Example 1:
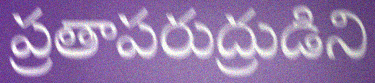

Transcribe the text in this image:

ప్రతాపరుద్రుడిని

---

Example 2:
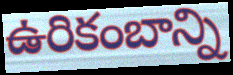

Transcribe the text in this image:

ఉరికంబాన్ని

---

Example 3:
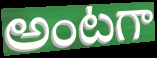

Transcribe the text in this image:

అంటగా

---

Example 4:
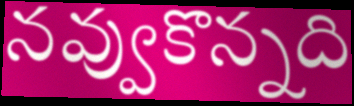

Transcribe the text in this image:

నవ్వుకొన్నది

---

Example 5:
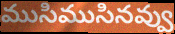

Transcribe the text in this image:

ముసిముసినవ్వు